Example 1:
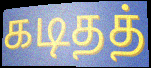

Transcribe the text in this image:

கடிதத்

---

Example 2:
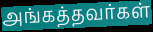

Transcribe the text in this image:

அங்கத்தவர்கள்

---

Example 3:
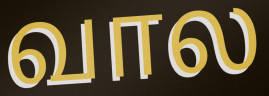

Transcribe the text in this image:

வால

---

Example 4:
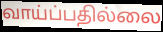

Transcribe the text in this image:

வாய்ப்பதில்லை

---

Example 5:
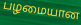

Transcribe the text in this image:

பழமையான